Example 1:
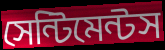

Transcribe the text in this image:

সেন্টিমেন্টস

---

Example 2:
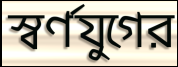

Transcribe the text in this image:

স্বর্ণযুগের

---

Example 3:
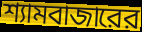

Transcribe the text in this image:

শ্যামবাজারের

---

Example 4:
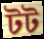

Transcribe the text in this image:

টট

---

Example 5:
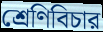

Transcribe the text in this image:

শ্রেণিবিচার